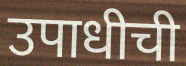
उपाधीची